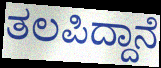
ತಲಪಿದ್ದಾನೆ